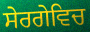
ਸੇਰਗੇਵਿਚ